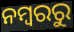
ନମ୍ବରରୁ